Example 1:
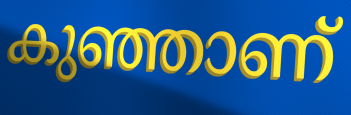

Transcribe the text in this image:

കുഞ്ഞാണ്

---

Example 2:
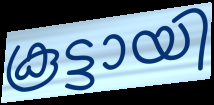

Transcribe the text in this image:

കൂട്ടായി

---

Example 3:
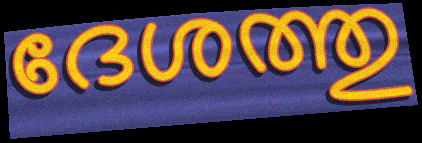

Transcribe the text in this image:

ദേശത്തു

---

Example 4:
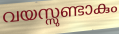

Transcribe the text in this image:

വയസ്സുണ്ടാകും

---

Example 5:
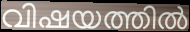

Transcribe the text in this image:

വിഷയത്തിൽ